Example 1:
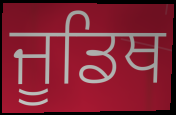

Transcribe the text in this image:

ਜੂਡਿਥ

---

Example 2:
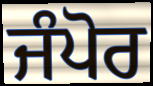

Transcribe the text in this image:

ਜੰਪੋਰ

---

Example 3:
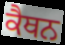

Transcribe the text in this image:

ਕੈਥਨ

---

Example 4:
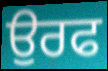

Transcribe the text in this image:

ਉਰਫ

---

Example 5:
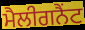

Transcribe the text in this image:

ਮੈਲੀਗਨੈਂਟ